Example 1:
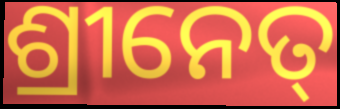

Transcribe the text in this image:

ଶ୍ରୀନେତ୍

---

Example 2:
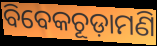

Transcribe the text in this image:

ବିବେକଚୂଡ଼ାମଣି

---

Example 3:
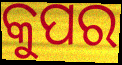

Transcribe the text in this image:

କୁପର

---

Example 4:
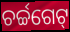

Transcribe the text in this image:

ଚର୍ଚ୍ଚଗେଟ୍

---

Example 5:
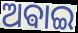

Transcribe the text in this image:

ଅଵାଇ